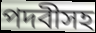
পদবীসহ